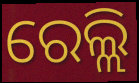
ରେଲ୍ଲି